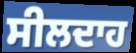
ਸੀਲਦਾਹ